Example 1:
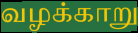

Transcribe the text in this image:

வழக்காறு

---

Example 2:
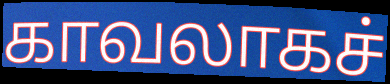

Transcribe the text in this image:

காவலாகச்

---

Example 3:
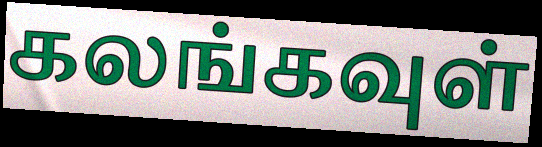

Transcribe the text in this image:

கலங்கவுள்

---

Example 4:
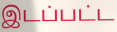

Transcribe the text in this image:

இடப்பட்ட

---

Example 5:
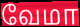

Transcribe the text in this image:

வேமா